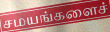
சமயங்களைச்